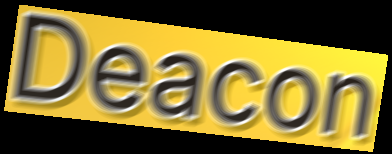
Deacon